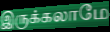
இருக்கலாமே